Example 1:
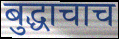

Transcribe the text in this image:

बुद्धाचाच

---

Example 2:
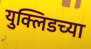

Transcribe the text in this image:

युक्लिडच्या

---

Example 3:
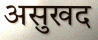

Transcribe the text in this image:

असुखद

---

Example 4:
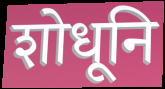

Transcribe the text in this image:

शोधूनि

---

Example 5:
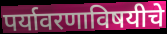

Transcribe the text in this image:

पर्यावरणाविषयीचे